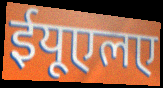
ईयूएलए